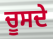
ਚੂਸਦੇ